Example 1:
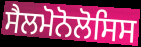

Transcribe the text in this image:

ਸੈਲਮੋਨੋਲੋਸਿਸ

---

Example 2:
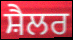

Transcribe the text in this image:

ਸ਼ੈਲਰ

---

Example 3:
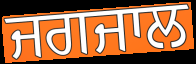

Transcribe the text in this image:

ਜਗਜਾਲ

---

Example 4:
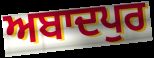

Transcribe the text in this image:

ਅਬਾਦਪੁਰ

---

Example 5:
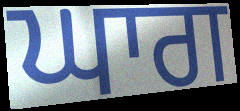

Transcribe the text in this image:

ਘਾਗ